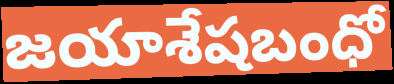
జయాశేషబంధో